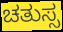
ಚತುಸ್ಸ